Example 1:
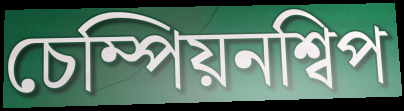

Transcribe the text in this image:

চেম্পিয়নশ্বিপ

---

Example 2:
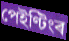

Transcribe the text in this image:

পেইণ্টিংৰ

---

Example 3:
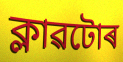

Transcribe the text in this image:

ক্লাৱটোৰ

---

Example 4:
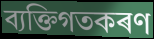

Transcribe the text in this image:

ব্যক্তিগতকৰণ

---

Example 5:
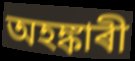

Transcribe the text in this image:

অহঙ্কাৰী